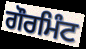
ਗੌਰਮਿੰਟ